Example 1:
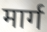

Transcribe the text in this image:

मार्ग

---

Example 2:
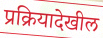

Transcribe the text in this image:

प्रक्रियादेखील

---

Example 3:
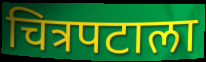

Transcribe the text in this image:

चित्रपटाला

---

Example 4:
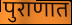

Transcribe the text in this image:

पुराणात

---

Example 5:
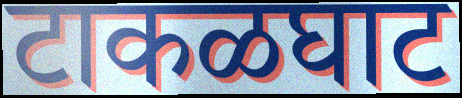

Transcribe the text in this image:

टाकळघाट